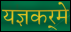
यज्ञकर्मे